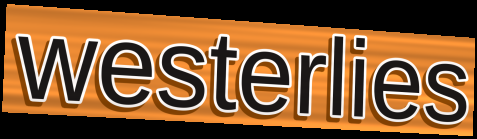
westerlies